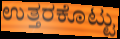
ಉತ್ತರಕೊಟ್ಟು